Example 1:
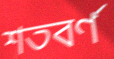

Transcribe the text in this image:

শতবর্ণ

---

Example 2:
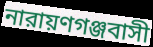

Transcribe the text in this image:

নারায়ণগঞ্জবাসী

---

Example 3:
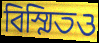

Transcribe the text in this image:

বিস্মিতও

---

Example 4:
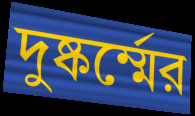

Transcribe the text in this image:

দুষ্কর্ম্মের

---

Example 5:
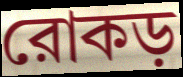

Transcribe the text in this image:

রোকড়